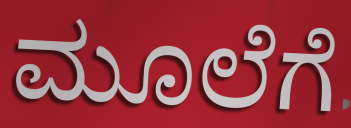
ಮೂಲೆಗೆ